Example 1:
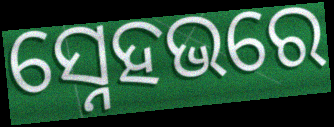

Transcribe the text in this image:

ସ୍ନେହଭରେ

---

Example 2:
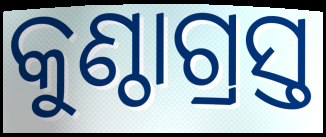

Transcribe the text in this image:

କୁଣ୍ଠାଗ୍ରସ୍ତ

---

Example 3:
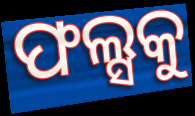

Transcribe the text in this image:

ଫଲ୍ସକୁ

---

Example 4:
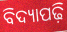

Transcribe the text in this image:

ବିଦ୍ୟାପଢ଼ି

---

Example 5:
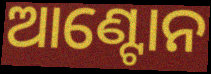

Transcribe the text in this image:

ଆଣ୍ଟୋନ